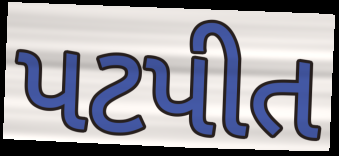
પટપીત